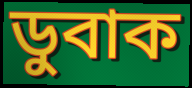
ডুবাক